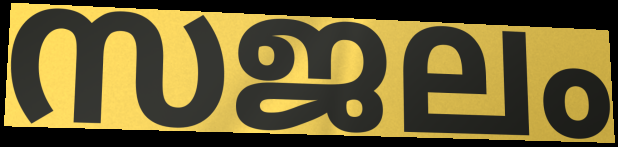
സജലം